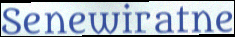
Senewiratne